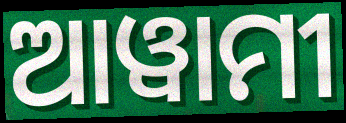
ଆୱାମୀ